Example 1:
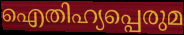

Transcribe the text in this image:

ഐതിഹ്യപ്പെരുമ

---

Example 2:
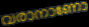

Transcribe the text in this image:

വരാനാണോ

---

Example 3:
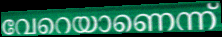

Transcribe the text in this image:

വേറെയാണെന്ന്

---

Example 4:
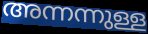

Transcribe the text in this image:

അന്നന്നുള്ള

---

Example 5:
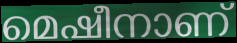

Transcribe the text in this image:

മെഷീനാണ്